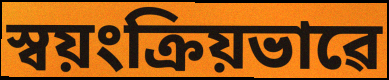
স্বয়ংক্ৰিয়ভাৱে